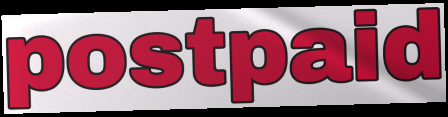
postpaid